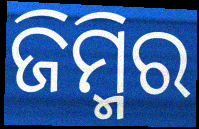
ଜିମ୍ମିର